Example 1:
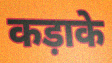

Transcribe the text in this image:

कड़ाके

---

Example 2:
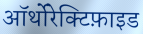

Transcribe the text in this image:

ऑर्थोरेक्टिफ़ाइड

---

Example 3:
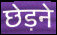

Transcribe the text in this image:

छेड़ने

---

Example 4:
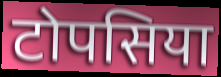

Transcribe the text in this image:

टोपसिया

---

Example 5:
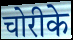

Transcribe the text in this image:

चोरीके